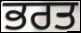
ਭਰਤ